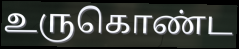
உருகொண்ட